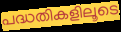
പദ്ധതികളിലൂടെ